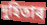
দুহিতাৰ